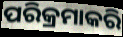
ପରିକ୍ରମାକରି